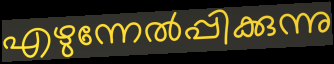
എഴുന്നേൽപ്പിക്കുന്നു